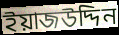
ইয়াজউদ্দিন